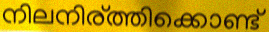
നിലനിര്ത്തിക്കൊണ്ട്